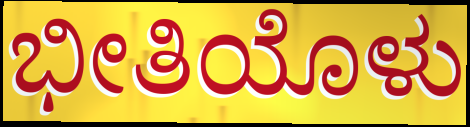
ಭೀತಿಯೊಳು